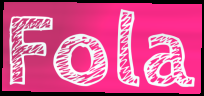
Fola